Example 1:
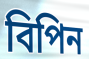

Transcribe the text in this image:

বিপিন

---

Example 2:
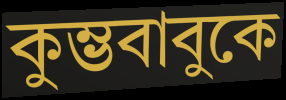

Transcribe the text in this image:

কুম্ভবাবুকে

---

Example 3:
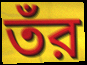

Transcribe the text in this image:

তঁর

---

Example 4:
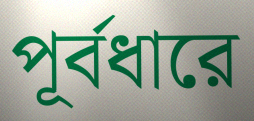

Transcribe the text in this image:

পূর্বধারে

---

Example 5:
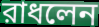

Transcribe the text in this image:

রাধলেন